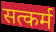
सत्कर्म